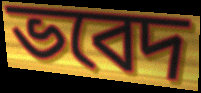
ভবেদ